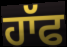
ਹਾੱਫ